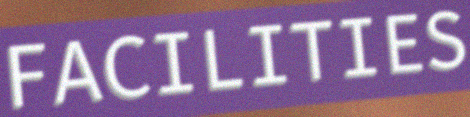
FACILITIES